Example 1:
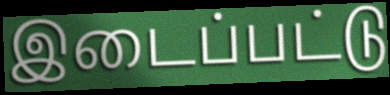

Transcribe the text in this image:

இடைப்பட்டு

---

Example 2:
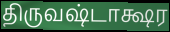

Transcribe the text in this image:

திருவஷ்டாக்ஷர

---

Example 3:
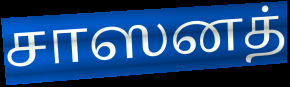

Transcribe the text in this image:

சாஸனத்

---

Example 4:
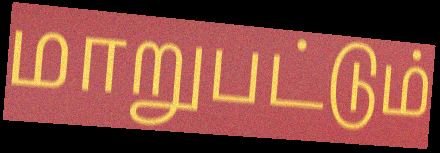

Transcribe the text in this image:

மாறுபட்டும்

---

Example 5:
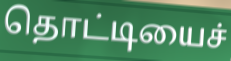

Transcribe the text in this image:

தொட்டியைச்